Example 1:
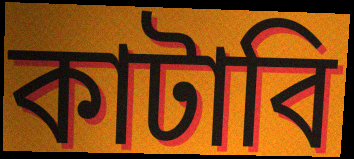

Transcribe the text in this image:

কাটাবি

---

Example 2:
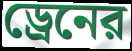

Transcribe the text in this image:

ড্রেনের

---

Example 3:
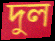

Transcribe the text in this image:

দুল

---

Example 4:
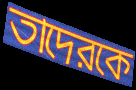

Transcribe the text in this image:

তাদেরকে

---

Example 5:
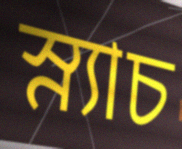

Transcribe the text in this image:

স্ন্যাচ